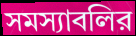
সমস্যাবলির